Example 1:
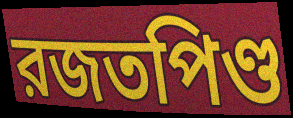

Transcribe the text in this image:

রজতপিণ্ড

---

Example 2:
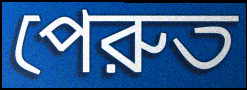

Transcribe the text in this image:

পেরুত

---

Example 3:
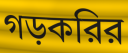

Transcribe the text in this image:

গড়করির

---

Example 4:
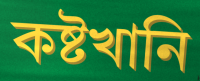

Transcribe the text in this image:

কষ্টখানি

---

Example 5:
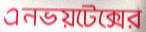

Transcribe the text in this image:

এনভয়টেক্সের